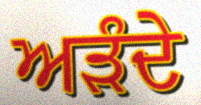
ਅੜੰਦੇ